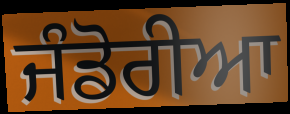
ਜੰਡੋਰੀਆ